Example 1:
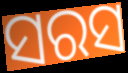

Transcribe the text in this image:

ସରସ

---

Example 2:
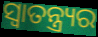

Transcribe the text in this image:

ସ୍ୱାତନ୍ତ୍ର୍ୟର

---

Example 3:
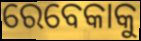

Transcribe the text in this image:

ରେବେକାକୁ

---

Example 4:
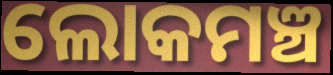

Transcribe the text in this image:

ଲୋକମଞ୍ଚ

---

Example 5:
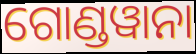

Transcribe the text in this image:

ଗୋଣ୍ଡୱାନା